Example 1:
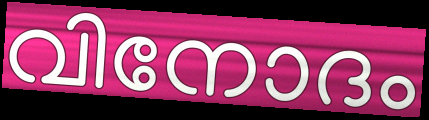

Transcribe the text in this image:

വിനോദം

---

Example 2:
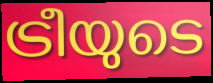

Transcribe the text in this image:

ട്രീയുടെ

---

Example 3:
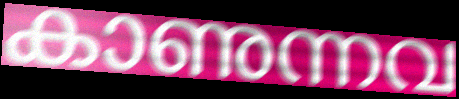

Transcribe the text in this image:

കാണുന്നവ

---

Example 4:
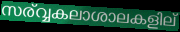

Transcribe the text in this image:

സര്വ്വകലാശാലകളില്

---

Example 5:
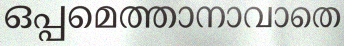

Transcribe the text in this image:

ഒപ്പമെത്താനാവാതെ